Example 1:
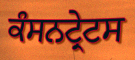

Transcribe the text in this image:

ਕੰਸਨਟ੍ਰੇਟਸ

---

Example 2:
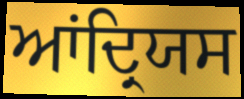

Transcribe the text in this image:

ਆਂਦ੍ਰਿਯਸ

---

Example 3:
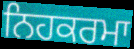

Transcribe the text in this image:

ਨਿਹਕਰਮਾ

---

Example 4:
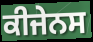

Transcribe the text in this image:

ਕੀਜੇਨਸ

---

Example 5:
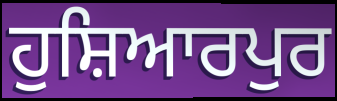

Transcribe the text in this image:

ਹੁਸ਼ਿਆਰਪੁਰ